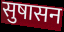
सुषासन